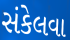
સંકેલવા